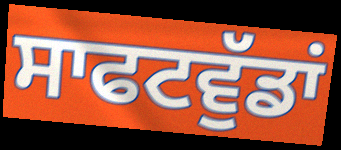
ਸਾਫਟਵੁੱਡਾਂ